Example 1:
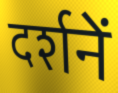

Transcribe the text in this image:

दर्शनें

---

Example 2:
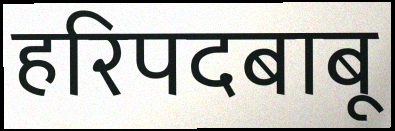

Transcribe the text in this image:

हरिपदबाबू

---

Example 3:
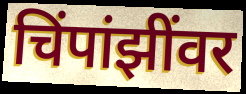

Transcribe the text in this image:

चिंपांझींवर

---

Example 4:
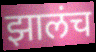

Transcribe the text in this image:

झालंच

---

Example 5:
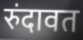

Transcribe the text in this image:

रुंदावत